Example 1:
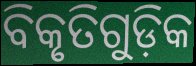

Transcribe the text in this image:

ବିକୃତିଗୁଡ଼ିକ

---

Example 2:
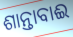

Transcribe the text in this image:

ଶାନ୍ତାବାଈ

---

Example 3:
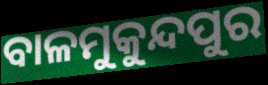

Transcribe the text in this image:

ବାଳମୁକୁନ୍ଦପୁର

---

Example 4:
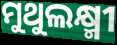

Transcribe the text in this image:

ମୁଥୁଲକ୍ଷ୍ମୀ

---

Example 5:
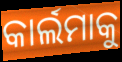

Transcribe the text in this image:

କାର୍ଲମାକୁ